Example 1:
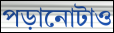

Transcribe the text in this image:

পড়ানোটাও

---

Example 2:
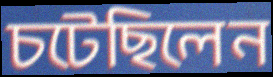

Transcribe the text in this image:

চটেছিলেন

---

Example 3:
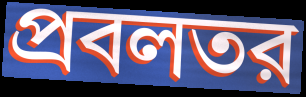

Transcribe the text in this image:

প্রবলতর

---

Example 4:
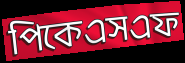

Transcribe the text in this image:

পিকেএসএফ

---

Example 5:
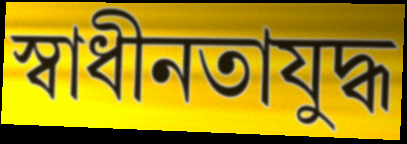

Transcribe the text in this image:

স্বাধীনতাযুদ্ধ